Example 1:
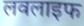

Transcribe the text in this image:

लवलाइफ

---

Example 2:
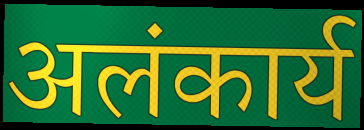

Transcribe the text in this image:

अलंकार्य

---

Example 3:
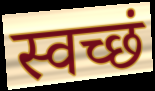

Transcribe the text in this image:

स्वच्छं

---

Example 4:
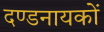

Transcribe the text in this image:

दण्डनायकों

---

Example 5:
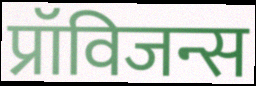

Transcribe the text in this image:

प्रॉविजन्स